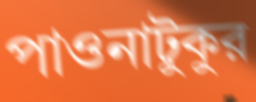
পাওনাটুকুর